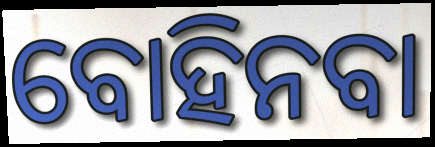
ବୋହିନବା